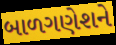
બાળગણેશને